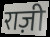
राज़ी